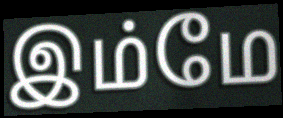
இம்மே